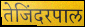
तेजिंदरपाल